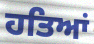
ਹਤਿਆਂ